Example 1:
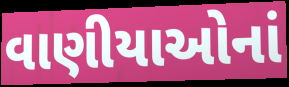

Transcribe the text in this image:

વાણીયાઓનાં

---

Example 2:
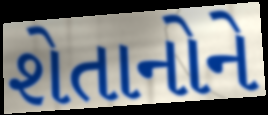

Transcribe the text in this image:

શેતાનોને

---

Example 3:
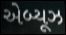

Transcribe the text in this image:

એબ્યૂઝ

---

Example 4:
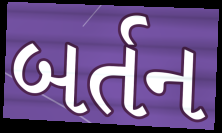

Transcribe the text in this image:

બર્તન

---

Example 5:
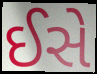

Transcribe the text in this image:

ઈસે